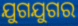
ଯୁଗଯୁଗର